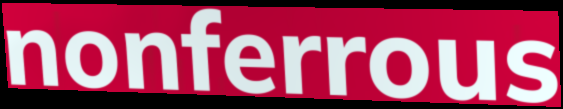
nonferrous